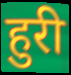
हुरी